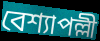
বেশ্যাপল্লী